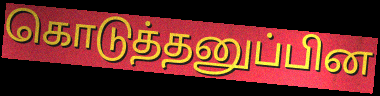
கொடுத்தனுப்பின